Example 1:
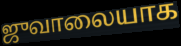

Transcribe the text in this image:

ஜுவாலையாக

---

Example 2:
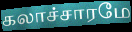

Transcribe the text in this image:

கலாச்சாரமே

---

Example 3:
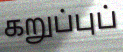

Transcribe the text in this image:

கறுப்புப்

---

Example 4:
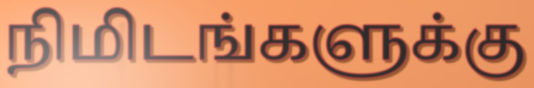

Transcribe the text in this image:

நிமிடங்களுக்கு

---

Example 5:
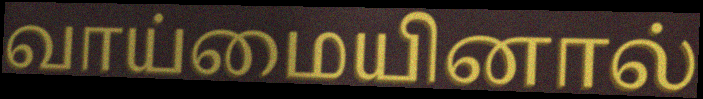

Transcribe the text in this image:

வாய்மையினால்